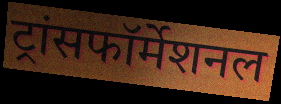
ट्रांसफॉर्मेशनल